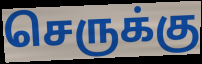
செருக்கு